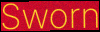
Sworn